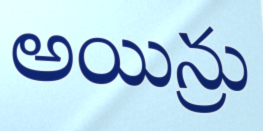
అయిన్రు